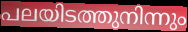
പലയിടത്തുനിന്നും